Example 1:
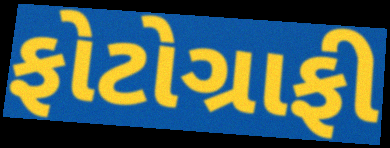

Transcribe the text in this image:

ફોટોગ્રાફી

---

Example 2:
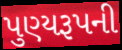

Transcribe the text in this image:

પુણ્યરૂપની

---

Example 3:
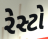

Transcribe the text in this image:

રેસ્ટો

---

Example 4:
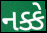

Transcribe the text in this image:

નક્કે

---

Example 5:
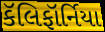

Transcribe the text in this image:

કૅલિફૉર્નિયા